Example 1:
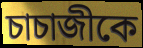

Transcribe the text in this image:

চাচাজীকে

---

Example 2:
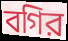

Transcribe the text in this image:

বগির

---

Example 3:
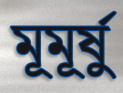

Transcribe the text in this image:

মূমূর্ষু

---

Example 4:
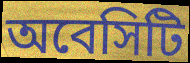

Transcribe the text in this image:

অবেসিটি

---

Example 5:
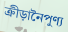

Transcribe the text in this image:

ক্রীড়ানৈপুণ্য